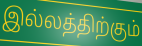
இல்லத்திற்கும்